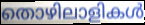
തൊഴിലാളികൾ